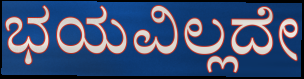
ಭಯವಿಲ್ಲದೇ